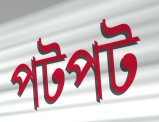
পটপট